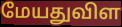
மேயதுவிள